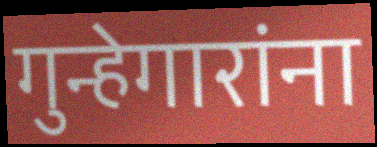
गुन्हेगारांना